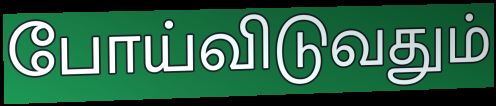
போய்விடுவதும்